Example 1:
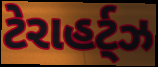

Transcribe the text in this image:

ટેરાહર્ટ્ઝ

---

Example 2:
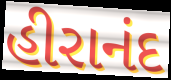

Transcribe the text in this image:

હીરાનંદ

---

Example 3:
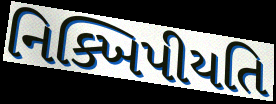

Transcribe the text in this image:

નિક્ખિપીયતિ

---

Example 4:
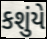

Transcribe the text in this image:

કશુંયે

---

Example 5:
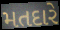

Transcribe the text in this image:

મતદારે